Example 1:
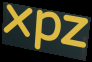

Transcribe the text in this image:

xpz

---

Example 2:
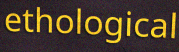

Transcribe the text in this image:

ethological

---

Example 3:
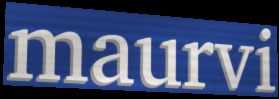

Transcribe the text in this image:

maurvi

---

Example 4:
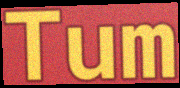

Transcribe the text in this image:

Tum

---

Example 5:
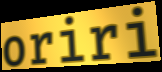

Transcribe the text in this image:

oriri